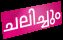
ചലിച്ചും